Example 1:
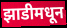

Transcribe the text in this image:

झाडीमधून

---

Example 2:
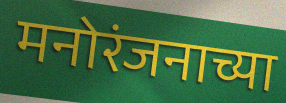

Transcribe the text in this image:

मनोरंजनाच्या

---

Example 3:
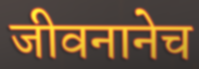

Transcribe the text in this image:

जीवनानेच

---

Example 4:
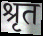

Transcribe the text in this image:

श्रृत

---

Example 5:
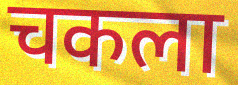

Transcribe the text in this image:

चकला